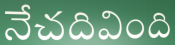
నేచదివింది